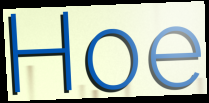
Hoe